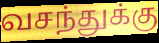
வசந்துக்கு